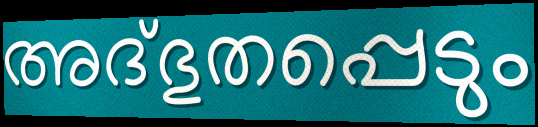
അദ്ഭുതപ്പെടും